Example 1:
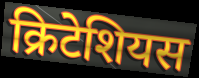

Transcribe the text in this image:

क्रिटेशियस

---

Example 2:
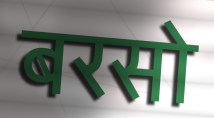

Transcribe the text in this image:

बरसो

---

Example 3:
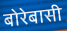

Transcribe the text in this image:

बोरेबासी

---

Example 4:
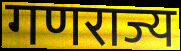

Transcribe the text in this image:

गणराज्य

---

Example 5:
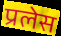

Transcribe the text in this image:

प्रलेस